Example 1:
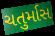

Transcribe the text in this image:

ચતુર્માસ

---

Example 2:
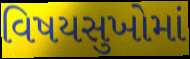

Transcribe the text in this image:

વિષયસુખોમાં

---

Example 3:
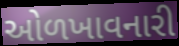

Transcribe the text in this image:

ઓળખાવનારી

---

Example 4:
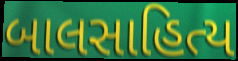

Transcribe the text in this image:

બાલસાહિત્ય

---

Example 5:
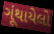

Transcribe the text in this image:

ગૂંથાયેલો